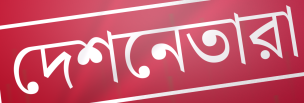
দেশনেতারা